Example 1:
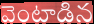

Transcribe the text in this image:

వెంటాడిన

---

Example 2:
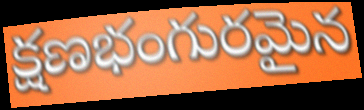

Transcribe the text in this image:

క్షణభంగురమైన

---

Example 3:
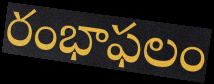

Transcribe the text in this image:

రంభాఫలం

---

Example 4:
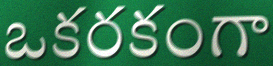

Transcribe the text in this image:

ఒకరకంగా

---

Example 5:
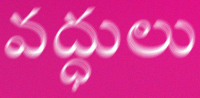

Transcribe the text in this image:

వద్ధులు